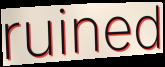
ruined